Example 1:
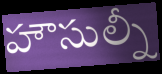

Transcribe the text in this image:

హౌసుల్నీ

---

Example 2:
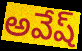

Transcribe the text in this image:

అవేష్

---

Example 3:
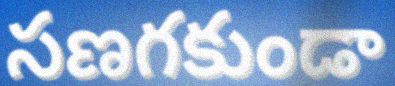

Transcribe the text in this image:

సణగకుండా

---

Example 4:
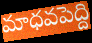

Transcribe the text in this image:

మాధవపెద్ది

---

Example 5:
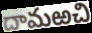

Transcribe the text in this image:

దామఱచి